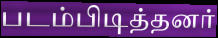
படம்பிடித்தனர்